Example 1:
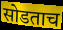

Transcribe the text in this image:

सोडताच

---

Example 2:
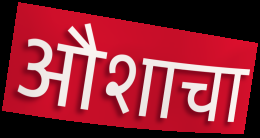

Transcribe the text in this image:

औशाचा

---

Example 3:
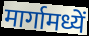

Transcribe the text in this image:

मार्गामध्यें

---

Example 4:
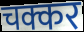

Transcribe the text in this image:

चक्कर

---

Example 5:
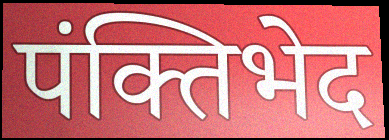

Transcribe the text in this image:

पंक्तिभेद